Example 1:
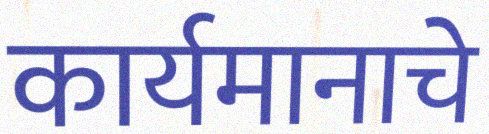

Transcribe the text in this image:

कार्यमानाचे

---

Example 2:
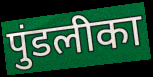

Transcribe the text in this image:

पुंडलीका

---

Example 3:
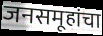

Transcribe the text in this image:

जनसमूहांचा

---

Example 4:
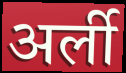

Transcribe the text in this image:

अर्ली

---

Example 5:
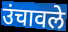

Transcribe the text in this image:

उंचावले